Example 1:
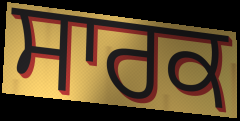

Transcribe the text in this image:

ਸਾਰਕ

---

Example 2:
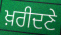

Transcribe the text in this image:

ਖ਼ਰੀਦਣੇ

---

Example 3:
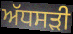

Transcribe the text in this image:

ਅੱਧਸੜੀ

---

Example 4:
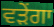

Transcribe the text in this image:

ਵੜੇਂਗਾ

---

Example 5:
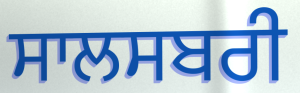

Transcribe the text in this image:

ਸਾਲਸਬਰੀ